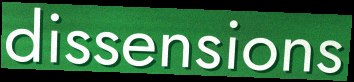
dissensions